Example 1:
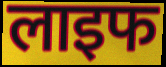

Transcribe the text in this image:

लाइफ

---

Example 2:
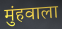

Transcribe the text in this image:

मुंहवाला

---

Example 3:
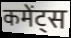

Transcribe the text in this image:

कमेंट्स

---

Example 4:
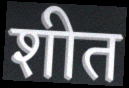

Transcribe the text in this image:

शीत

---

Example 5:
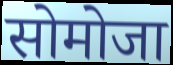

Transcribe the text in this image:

सोमोजा